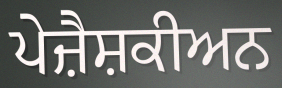
ਪੇਜ਼ੈਸ਼ਕੀਅਨ